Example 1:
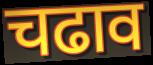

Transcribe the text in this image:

चढाव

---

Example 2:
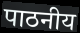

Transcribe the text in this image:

पाठनीय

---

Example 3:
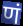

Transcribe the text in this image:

णं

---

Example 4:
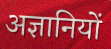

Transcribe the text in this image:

अज्ञानियों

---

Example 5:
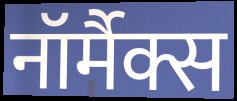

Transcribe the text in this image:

नॉर्मैक्स